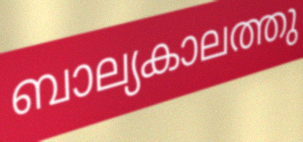
ബാല്യകാലത്തു